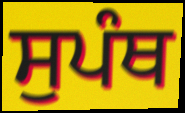
ਸੁਪੰਥ